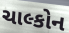
ચાલ્કોન